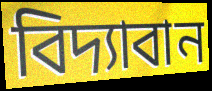
বিদ্যাবান